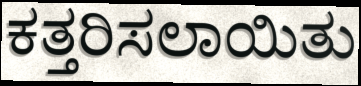
ಕತ್ತರಿಸಲಾಯಿತು